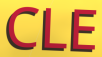
CLE